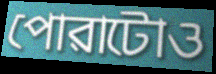
পোৱাটোও